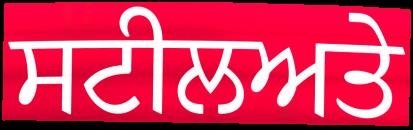
ਸਟੀਲਅਤੇ